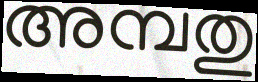
അമ്പതു